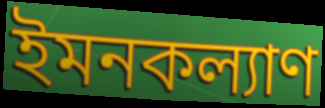
ইমনকল্যাণ